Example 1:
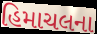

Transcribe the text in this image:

હિમાચલના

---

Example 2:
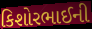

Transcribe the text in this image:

કિશોરભાઈની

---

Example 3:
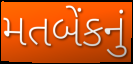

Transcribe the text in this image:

મતબેંકનું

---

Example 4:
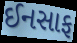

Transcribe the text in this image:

ઈનસાફ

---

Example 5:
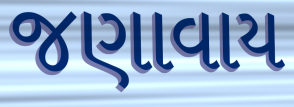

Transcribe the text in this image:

જણાવાય